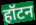
हॉटन